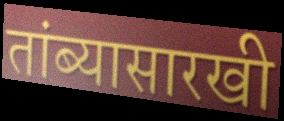
तांब्यासारखी